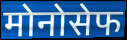
मोनोसेफ